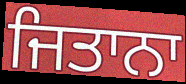
ਜਿਤਾਨਾ